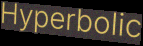
Hyperbolic